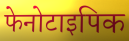
फेनोटाइपिक